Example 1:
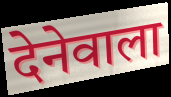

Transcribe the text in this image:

देनेवाला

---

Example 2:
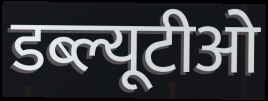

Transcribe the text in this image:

डब्ल्यूटीओ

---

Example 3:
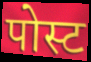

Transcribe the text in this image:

पोस्ट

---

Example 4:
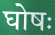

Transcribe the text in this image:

घोषः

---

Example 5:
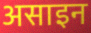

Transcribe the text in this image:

असाइन